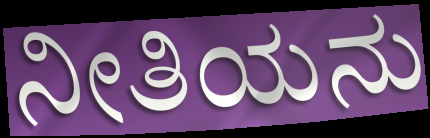
ನೀತಿಯನು